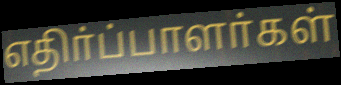
எதிர்ப்பாளர்கள்